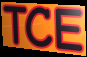
TCE